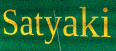
Satyaki